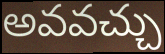
అవవచ్చు